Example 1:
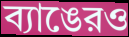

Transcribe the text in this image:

ব্যাঙেরও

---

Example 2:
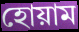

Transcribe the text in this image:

হোয়াম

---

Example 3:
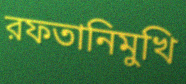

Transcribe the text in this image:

রফতানিমুখি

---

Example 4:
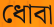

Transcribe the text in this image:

ধোবা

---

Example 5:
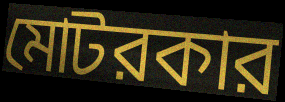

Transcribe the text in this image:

মোটরকার